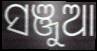
ସଞ୍ଜୁଆ